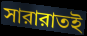
সারারাতই